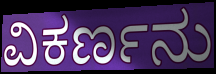
ವಿಕರ್ಣನು